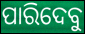
ପାରିଦେବୁ